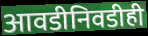
आवडीनिवडीही